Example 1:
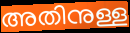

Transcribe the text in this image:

അതിനുള്ള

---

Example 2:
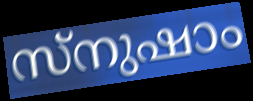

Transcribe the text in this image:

സ്നുഷാം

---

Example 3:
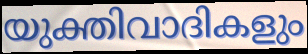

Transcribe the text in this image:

യുക്തിവാദികളും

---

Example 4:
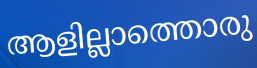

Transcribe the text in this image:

ആളില്ലാത്തൊരു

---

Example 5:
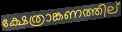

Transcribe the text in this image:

ക്ഷേത്രാങ്കണത്തില്